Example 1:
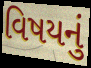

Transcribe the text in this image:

વિષયનું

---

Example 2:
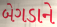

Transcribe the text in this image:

બેગડાને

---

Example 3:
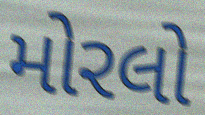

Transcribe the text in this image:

મોરલો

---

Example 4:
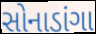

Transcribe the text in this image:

સોનાડાંગા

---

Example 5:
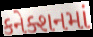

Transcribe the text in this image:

કનેક્શનમાં